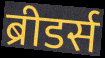
ब्रीडर्स